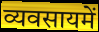
व्यवसायमें